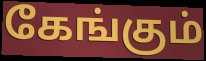
கேங்கும்